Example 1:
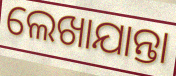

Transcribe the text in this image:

ଲେଖାଯାନ୍ତା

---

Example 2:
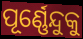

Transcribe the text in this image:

ପୂର୍ଣ୍ଣେନ୍ଦୁକୁ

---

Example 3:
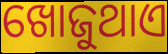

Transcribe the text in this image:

ଖୋଜୁଥାଏ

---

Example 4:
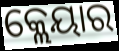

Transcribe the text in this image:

କ୍ଲେୟାର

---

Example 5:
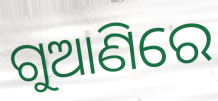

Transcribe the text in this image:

ଗୁଆଣିରେ